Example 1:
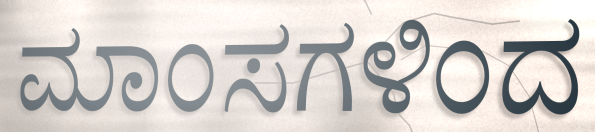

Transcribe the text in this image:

ಮಾಂಸಗಳಿಂದ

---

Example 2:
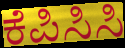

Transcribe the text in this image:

ಕೆಪಿಸಿಸಿ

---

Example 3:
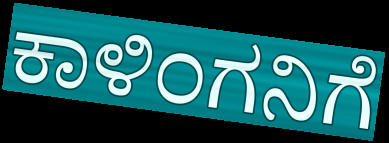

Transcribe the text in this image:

ಕಾಳಿಂಗನಿಗೆ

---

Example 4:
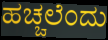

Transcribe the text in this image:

ಹಚ್ಚಲೆಂದು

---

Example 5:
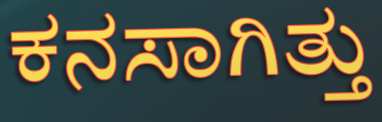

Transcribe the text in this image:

ಕನಸಾಗಿತ್ತು